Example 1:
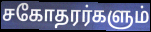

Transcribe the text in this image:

சகோதரர்களும்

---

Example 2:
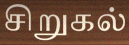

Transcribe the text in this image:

சிறுகல்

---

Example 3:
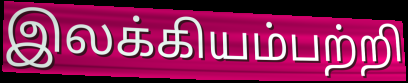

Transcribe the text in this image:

இலக்கியம்பற்றி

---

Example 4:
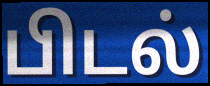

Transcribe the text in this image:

பிடல்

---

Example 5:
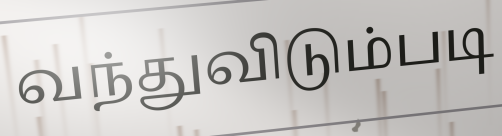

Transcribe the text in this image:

வந்துவிடும்படி